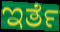
ಇರ್ತೆ